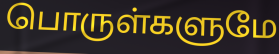
பொருள்களுமே